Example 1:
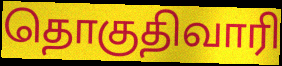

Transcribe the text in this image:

தொகுதிவாரி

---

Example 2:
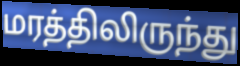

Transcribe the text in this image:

மரத்திலிருந்து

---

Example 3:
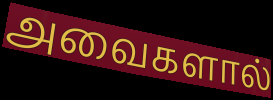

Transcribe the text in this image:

அவைகளால்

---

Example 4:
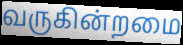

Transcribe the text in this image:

வருகின்றமை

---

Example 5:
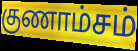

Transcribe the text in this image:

குணாம்சம்